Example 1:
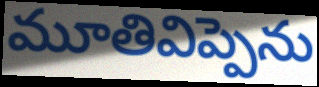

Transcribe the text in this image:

మూతివిప్పెను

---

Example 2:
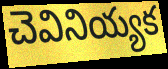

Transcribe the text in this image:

చెవినియ్యక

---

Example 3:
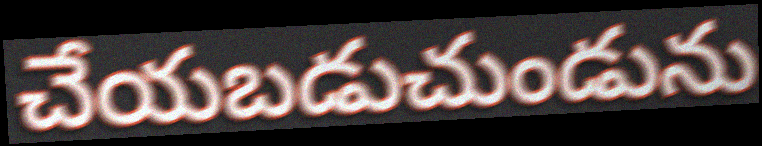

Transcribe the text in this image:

చేయబడుచుండును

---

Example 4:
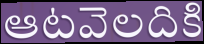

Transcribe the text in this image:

ఆటవెలదికి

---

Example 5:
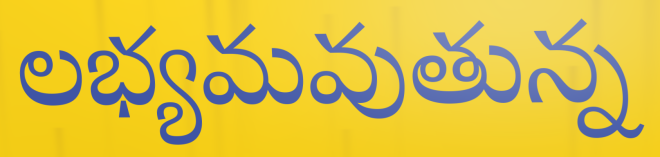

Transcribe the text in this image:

లభ్యమవుతున్న